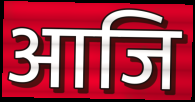
आजि